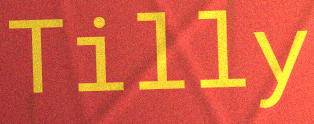
Tilly